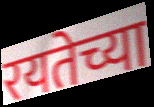
रयतेच्या